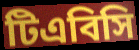
টিএবিসি